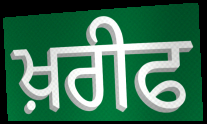
ਖ਼ਰੀਫ